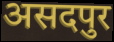
असदपुर